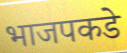
भाजपकडे